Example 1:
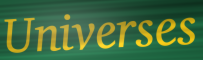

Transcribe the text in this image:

Universes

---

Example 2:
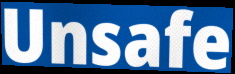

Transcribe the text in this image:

Unsafe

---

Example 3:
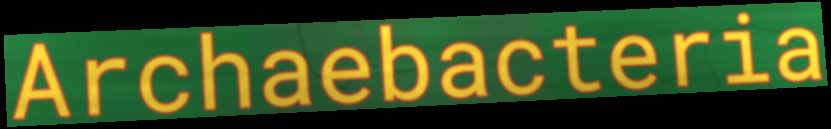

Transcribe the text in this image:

Archaebacteria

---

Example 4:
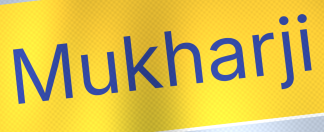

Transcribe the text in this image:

Mukharji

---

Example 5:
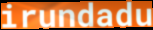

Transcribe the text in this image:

irundadu